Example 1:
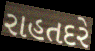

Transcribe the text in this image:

રાહતદરે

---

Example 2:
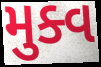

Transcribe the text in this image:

મુક્વ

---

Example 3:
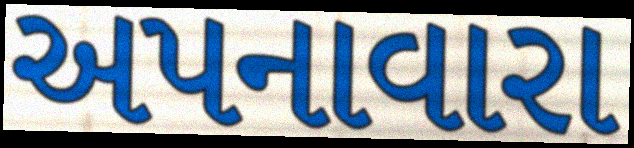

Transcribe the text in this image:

અપનાવારા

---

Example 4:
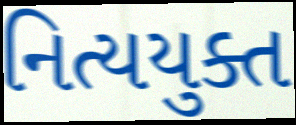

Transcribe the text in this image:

નિત્યયુક્ત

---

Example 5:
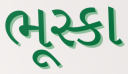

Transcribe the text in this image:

ભૂસ્કા